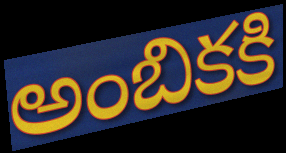
అంబికకి